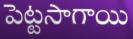
పెట్టసాగాయి